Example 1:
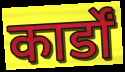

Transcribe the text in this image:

कार्डों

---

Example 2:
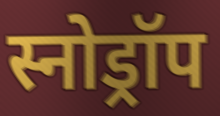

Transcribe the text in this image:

स्नोड्रॉप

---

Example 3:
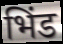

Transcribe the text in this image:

भिंड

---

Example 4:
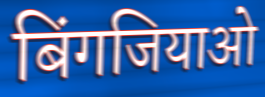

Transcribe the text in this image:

बिंगजियाओ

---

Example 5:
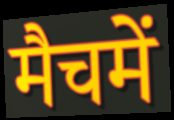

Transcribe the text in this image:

मैचमें